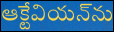
ఆక్టేవియన్‌ను